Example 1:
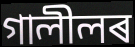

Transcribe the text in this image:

গালীলৰ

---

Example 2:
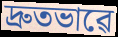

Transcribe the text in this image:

দ্ৰুতভাৱে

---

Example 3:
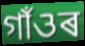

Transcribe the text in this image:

গাঁওৰ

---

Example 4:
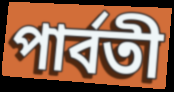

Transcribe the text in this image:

পাৰ্বতী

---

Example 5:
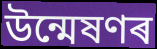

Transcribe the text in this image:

উন্মেষণৰ